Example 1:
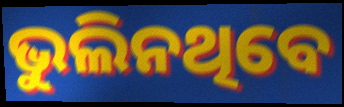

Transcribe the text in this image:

ଭୁଲିନଥିବେ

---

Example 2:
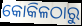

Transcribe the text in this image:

କୋକିଳଠାରୁ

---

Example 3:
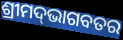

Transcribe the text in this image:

ଶ୍ରୀମଦ୍‌ଭାଗବତର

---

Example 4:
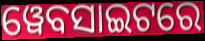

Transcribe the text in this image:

ୱେବସାଇଟରେ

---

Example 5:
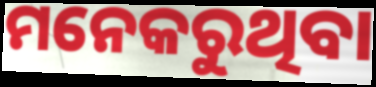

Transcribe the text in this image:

ମନେକରୁଥିବା